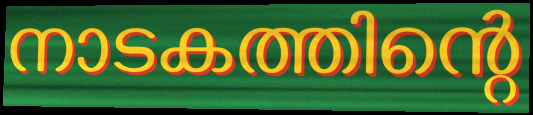
നാടകത്തിന്റെ